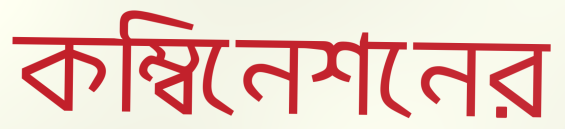
কম্বিনেশনের